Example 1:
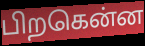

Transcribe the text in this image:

பிறகென்ன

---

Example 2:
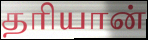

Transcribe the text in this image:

தரியான்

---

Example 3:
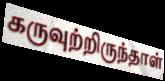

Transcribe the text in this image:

கருவுற்றிருந்தாள்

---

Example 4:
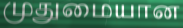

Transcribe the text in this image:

முதுமையான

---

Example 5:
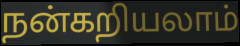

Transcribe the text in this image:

நன்கறியலாம்